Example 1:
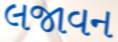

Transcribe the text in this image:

લજાવન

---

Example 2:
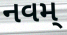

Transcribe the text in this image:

નવમ્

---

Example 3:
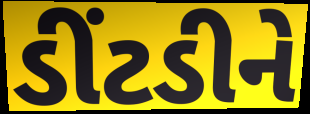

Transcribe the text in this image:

ડીંટડીને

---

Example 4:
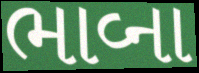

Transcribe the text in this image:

ભાવ્ના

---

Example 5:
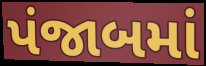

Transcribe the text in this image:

પંજાબમાં